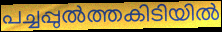
പച്ചപ്പുൽത്തകിടിയിൽ